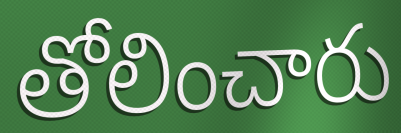
తోలించారు